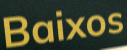
Baixos